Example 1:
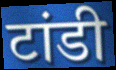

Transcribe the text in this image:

टांडी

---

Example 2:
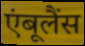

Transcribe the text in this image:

एंबूलैंस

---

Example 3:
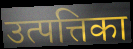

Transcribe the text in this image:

उत्पत्तिका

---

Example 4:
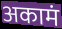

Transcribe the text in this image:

अकामं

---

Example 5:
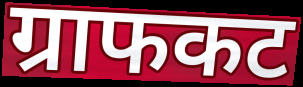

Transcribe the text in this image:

ग्राफकट